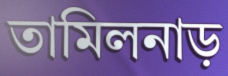
তামিলনাড়